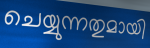
ചെയ്യുന്നതുമായി